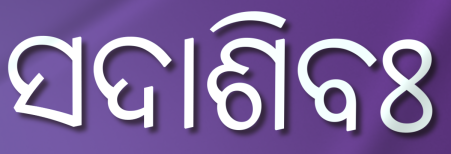
ସଦାଶିବଃ